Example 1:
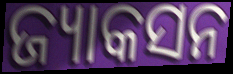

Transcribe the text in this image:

ଜ୍ୟାକସନ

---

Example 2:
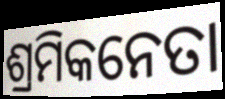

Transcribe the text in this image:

ଶ୍ରମିକନେତା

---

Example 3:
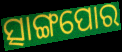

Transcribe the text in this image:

ତ୍ସାଙ୍ଗପୋର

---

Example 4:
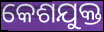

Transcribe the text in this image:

କେଶଯୁକ୍ତ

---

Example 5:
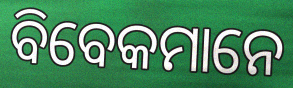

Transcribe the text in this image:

ବିବେକମାନେ